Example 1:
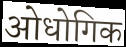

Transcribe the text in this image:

ओधोगिक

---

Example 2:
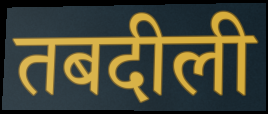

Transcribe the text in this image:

तबदीली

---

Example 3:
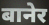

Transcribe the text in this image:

बानेर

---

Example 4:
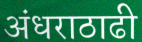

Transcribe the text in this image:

अंधराठाढी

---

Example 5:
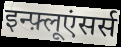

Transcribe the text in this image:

इन्फ़्लूएंसर्स